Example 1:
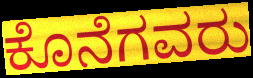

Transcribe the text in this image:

ಕೊನೆಗವರು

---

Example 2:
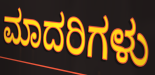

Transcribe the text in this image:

ಮಾದರಿಗಳು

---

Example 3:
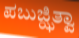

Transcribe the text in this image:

ಪಬುಜ್ಝಿತ್ವಾ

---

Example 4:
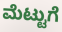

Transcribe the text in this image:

ಮೆಟ್ಟುಗೆ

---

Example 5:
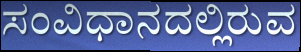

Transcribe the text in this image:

ಸಂವಿಧಾನದಲ್ಲಿರುವ